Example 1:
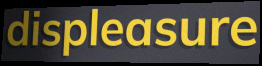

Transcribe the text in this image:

displeasure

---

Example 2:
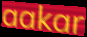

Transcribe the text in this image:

aakar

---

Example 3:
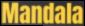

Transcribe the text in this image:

Mandala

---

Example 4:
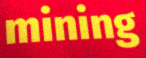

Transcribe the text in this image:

mining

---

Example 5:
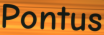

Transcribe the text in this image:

Pontus